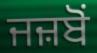
ਜਜ਼ਬੋਂ